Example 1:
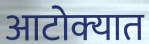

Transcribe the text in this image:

आटोक्‍यात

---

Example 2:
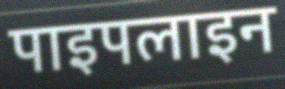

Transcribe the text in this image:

पाइपलाइन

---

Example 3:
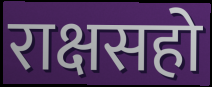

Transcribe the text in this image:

राक्षसहो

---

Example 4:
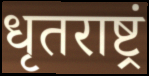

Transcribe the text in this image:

धृतराष्ट्रं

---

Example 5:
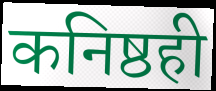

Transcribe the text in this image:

कनिष्ठही